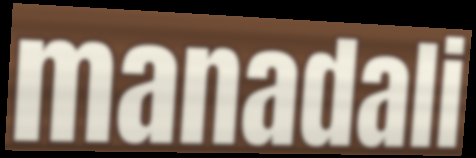
manadali